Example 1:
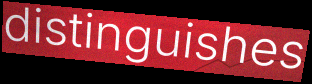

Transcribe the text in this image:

distinguishes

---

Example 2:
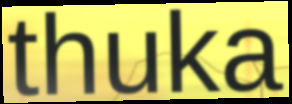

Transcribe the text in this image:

thuka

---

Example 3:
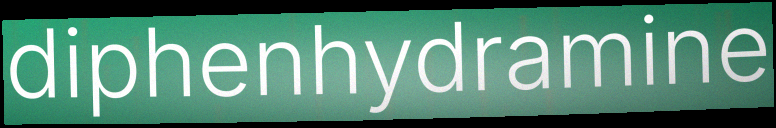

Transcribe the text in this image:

diphenhydramine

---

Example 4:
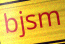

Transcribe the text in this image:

bjsm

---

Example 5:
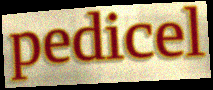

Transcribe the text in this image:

pedicel